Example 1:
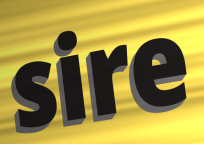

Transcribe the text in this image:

sire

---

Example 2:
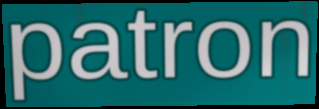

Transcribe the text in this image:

patron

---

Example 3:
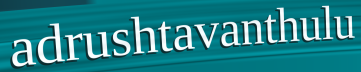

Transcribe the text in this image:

adrushtavanthulu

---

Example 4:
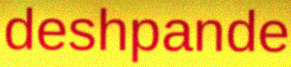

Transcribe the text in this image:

deshpande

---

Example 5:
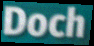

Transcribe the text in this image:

Doch